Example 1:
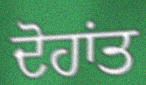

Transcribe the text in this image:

ਦੋਹਾਂਤ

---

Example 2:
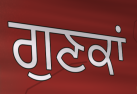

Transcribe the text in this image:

ਗੁਣਕਾਂ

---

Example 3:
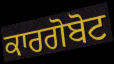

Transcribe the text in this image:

ਕਾਰਗੋਬੋਟ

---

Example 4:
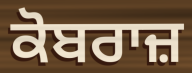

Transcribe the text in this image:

ਕੋਬਰਾਜ਼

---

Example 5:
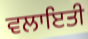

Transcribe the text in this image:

ਵਲਾਇਤੀ